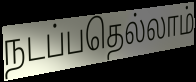
நடப்பதெல்லாம்